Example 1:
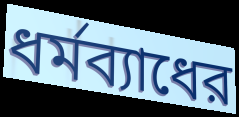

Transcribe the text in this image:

ধর্মব্যাধের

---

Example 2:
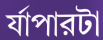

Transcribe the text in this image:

র্যাপারটা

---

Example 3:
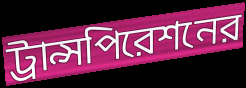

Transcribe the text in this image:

ট্রান্সপিরেশনের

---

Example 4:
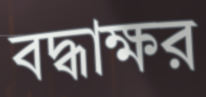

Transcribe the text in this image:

বদ্ধাক্ষর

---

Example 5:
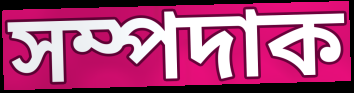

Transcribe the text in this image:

সম্পদাক